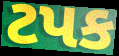
ટપક